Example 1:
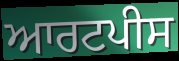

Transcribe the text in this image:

ਆਰਟਪੀਸ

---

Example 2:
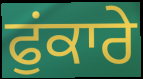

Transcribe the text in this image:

ਫੁਂਕਾਰੇ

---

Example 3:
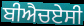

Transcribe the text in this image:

ਬੀਐਚਏਸੀ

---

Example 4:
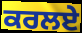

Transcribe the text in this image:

ਕਰਲਏ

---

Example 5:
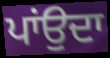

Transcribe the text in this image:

ਪਾਂਉਦਾ